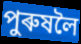
পুৰুষলৈ